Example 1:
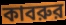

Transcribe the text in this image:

কাবরুর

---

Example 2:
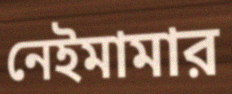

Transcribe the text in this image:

নেইমামার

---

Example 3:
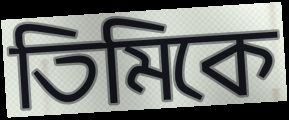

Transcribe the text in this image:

তিমিকে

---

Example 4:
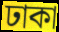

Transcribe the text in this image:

ঢাকা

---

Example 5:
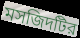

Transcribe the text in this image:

মসজিদটির